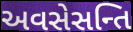
અવસેસન્તિ